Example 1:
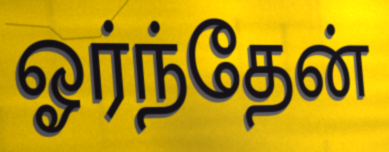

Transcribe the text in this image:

ஓர்ந்தேன்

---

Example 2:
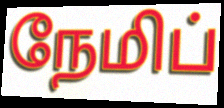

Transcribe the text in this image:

நேமிப்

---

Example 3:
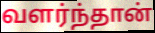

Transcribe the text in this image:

வளர்ந்தான்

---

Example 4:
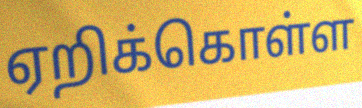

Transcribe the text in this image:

ஏறிக்கொள்ள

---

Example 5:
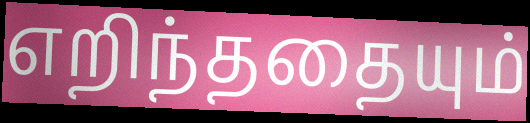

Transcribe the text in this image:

எறிந்ததையும்